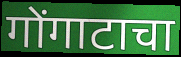
गोंगाटाचा